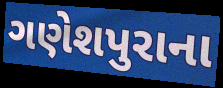
ગણેશપુરાના